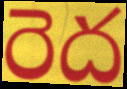
రెద